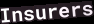
Insurers